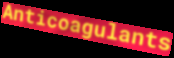
Anticoagulants